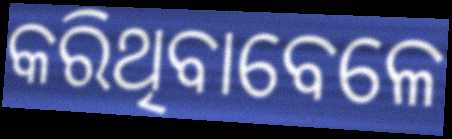
କରିଥିବାବେଳେ